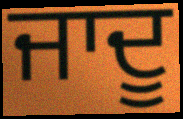
ਜਾਦੂ